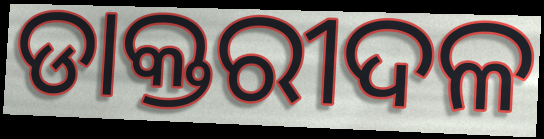
ଡାକ୍ତରୀଦଳ